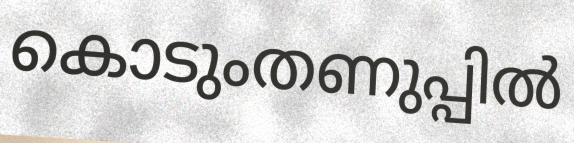
കൊടുംതണുപ്പിൽ